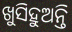
ଖୁସିହୁଅନ୍ତି